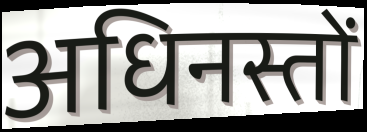
अधिनस्तों